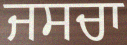
ਜਸਚਾ